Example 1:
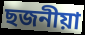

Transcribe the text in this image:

ছজনীয়া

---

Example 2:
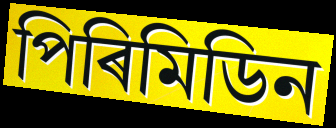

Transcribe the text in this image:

পিৰিমিডিন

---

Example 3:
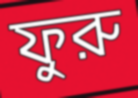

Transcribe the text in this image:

ফুৰু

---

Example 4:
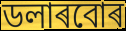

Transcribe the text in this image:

ডলাৰবোৰ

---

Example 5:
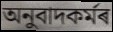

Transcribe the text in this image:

অনুবাদকৰ্মৰ